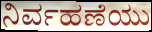
ನಿರ್ವಹಣೆಯು